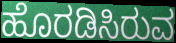
ಹೊರಡಿಸಿರುವ